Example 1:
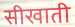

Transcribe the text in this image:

सीखाती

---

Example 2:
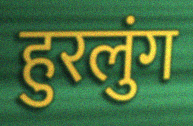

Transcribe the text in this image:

हुरलुंग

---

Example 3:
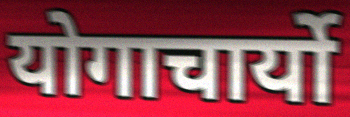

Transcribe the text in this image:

योगाचार्यो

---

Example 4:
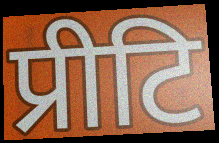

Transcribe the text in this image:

प्रीटि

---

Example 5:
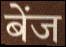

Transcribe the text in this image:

बेंज